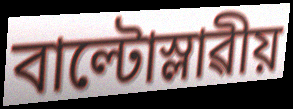
বাল্টোস্লাৱীয়